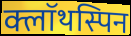
क्लॉथस्पिन